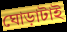
ঘোড়াটাই